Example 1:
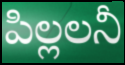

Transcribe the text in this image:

పిల్లలనీ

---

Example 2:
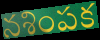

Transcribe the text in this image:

నశింపక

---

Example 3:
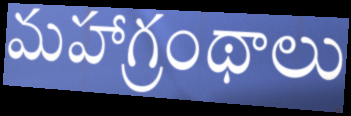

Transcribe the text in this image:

మహాగ్రంథాలు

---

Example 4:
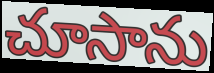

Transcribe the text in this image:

చూసాను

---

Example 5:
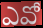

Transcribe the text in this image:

ఎవో